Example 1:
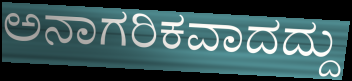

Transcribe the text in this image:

ಅನಾಗರಿಕವಾದದ್ದು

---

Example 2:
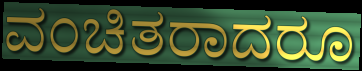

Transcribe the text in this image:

ವಂಚಿತರಾದರೂ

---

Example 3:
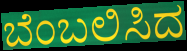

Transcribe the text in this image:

ಬೆಂಬಲಿಸಿದ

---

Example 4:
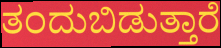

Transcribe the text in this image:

ತಂದುಬಿಡುತ್ತಾರೆ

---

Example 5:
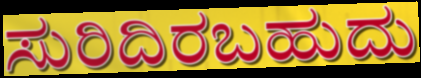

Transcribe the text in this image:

ಸುರಿದಿರಬಹುದು